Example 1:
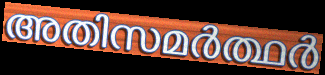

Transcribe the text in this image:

അതിസമർത്ഥർ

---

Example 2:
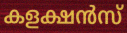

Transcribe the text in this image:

കളക്ഷൻസ്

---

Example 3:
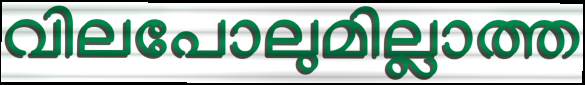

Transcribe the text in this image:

വിലപോലുമില്ലാത്ത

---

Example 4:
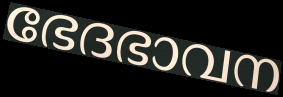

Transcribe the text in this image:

ഭേദഭാവന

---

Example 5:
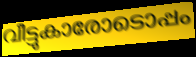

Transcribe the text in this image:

വീട്ടുകാരോടൊപ്പം